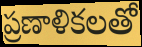
ప్రణాళికలతో